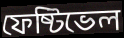
ফেষ্টিভেল